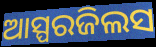
ଆସ୍ପରଜିଲସ